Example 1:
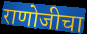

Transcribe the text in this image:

राणोजीचा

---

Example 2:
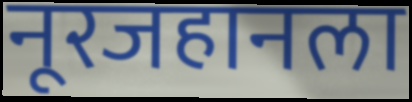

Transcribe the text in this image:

नूरजहानला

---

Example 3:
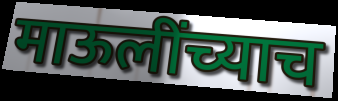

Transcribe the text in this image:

माऊलींच्याच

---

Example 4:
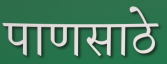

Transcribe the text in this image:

पाणसाठे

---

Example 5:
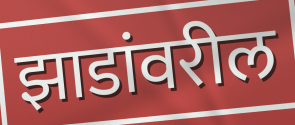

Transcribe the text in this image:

झाडांवरील